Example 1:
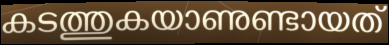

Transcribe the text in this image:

കടത്തുകയാണുണ്ടായത്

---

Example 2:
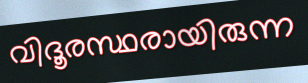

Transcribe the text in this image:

വിദൂരസ്ഥരായിരുന്ന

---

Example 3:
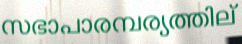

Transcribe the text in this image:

സഭാപാരമ്പര്യത്തില്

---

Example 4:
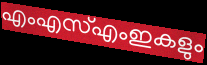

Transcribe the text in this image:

എംഎസ്എംഇകളും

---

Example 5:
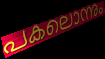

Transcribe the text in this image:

പകലൊന്നും